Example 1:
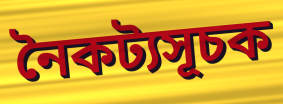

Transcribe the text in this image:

নৈকট্যসূচক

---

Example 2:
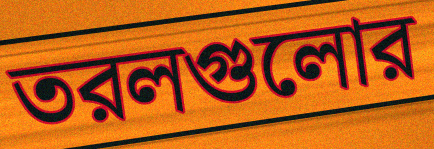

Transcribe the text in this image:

তরলগুলোর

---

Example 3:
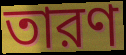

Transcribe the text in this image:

তারণ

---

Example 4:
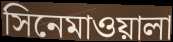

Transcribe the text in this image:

সিনেমাওয়ালা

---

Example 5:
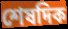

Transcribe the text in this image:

শেষদিক